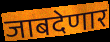
जाबदेणार